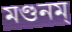
মণ্ডনম্